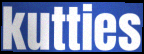
kutties